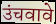
उंचवावे